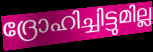
ദ്രോഹിച്ചിട്ടുമില്ല